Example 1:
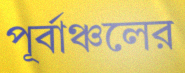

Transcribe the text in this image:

পূর্বাঞ্চলের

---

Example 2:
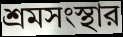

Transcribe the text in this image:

শ্রমসংস্থার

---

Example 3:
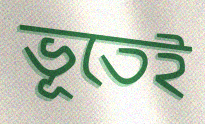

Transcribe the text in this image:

ভূতেই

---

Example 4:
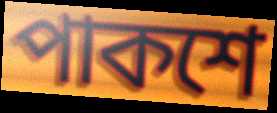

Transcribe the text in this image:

পাকশে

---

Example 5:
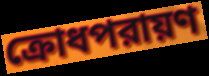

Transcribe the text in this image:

ক্রোধপরায়ণ